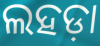
ଲହଡ଼ା